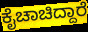
ಕೈಚಾಚಿದ್ದಾರೆ